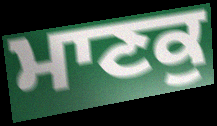
ਮਾਣਕੁ